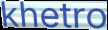
khetro